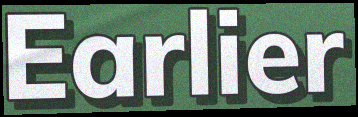
Earlier